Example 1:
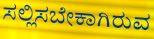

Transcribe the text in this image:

ಸಲ್ಲಿಸಬೇಕಾಗಿರುವ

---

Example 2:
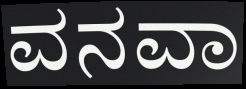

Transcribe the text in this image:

ವನವಾ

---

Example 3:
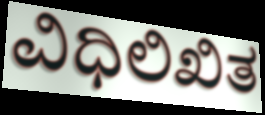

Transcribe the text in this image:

ವಿಧಿಲಿಖಿತ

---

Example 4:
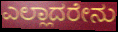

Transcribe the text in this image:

ಎಲ್ಲಾದರೇನು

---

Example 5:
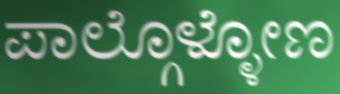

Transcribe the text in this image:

ಪಾಲ್ಗೊಳ್ಳೋಣ